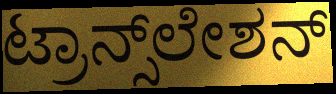
ಟ್ರಾನ್ಸ್‌ಲೇಶನ್